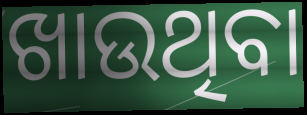
ଖାଉଥିବା